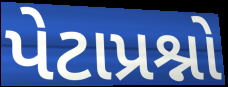
પેટાપ્રશ્નો